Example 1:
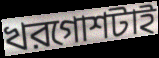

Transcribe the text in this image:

খরগোশটাই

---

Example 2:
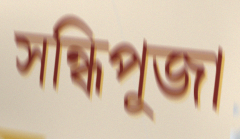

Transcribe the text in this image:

সন্ধিপূজা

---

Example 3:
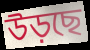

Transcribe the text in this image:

উড়ছে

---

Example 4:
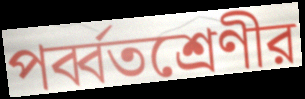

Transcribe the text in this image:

পর্ব্বতশ্রেণীর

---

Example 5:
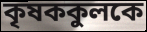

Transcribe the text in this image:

কৃষককুলকে